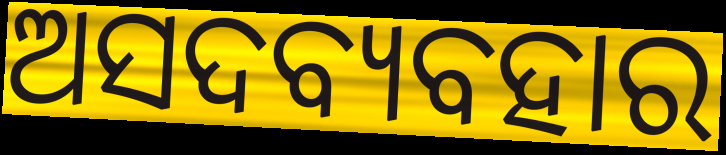
ଅସଦବ୍ୟବହାର